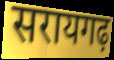
सरायगढ़